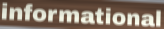
informational